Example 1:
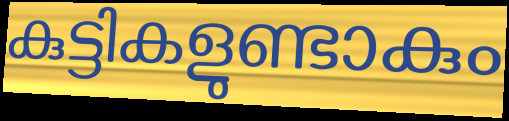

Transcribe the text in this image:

കുട്ടികളുണ്ടാകും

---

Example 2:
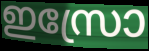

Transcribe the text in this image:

ഇസ്രോ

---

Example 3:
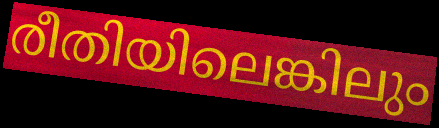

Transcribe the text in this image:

രീതിയിലെങ്കിലും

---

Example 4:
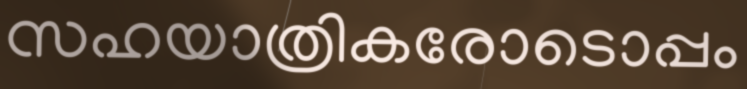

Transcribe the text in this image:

സഹയാത്രികരോടൊപ്പം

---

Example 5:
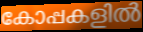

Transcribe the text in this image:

കോപ്പകളിൽ